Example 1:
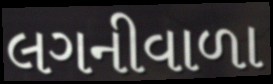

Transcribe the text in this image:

લગનીવાળા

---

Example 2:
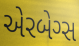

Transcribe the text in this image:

એરબેગ્સ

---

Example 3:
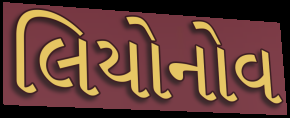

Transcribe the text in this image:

લિયોનોવ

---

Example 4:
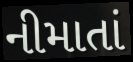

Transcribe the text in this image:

નીમાતાં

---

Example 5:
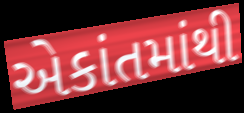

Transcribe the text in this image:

એકાંતમાંથી